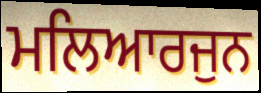
ਮਲਿਆਰਜੁਨ